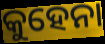
କୁହେନା